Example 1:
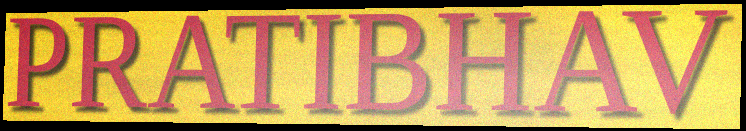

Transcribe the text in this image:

PRATIBHAV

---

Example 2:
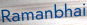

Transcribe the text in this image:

Ramanbhai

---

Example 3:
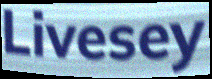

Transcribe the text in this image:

Livesey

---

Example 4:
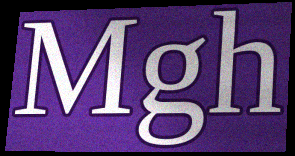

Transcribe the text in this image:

Mgh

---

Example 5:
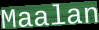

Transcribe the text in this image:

Maalan